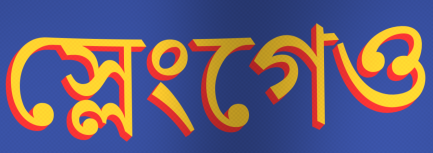
স্লেংগেও